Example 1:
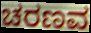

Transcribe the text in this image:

ಚರಣವ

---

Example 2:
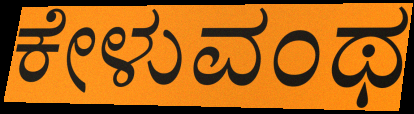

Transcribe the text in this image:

ಕೇಳುವಂಥ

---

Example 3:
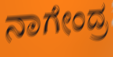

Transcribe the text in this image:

ನಾಗೇಂದ್ರ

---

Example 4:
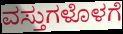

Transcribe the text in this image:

ವಸ್ತುಗಳೊಳಗೆ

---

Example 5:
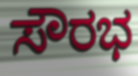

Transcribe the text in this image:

ಸೌರಭ